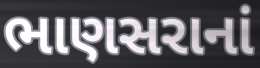
ભાણસરાનાં